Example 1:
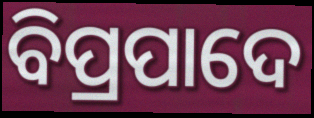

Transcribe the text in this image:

ବିପ୍ରପାଦେ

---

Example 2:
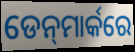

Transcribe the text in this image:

ଡେନ୍‍ମାର୍କରେ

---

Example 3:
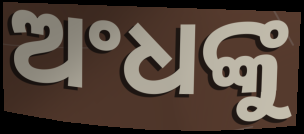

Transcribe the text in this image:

ଅଂଧଙ୍କୁ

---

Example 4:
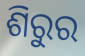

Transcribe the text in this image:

ଶିରୁର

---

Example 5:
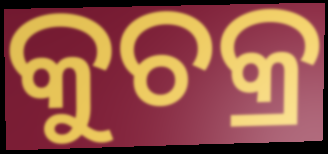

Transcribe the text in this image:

କୁଚକ୍ର